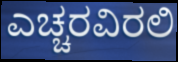
ಎಚ್ಚರವಿರಲಿ